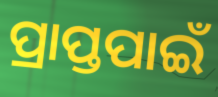
ପ୍ରାପ୍ତପାଇଁ